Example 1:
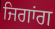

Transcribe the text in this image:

ਜਿਗਾਂਗ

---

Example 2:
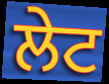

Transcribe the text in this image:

ਲੇਟ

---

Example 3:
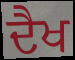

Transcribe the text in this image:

ਦੈਖ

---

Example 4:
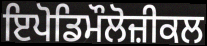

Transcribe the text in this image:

ਇਪੋਡਿਮੌਲੋਜ਼ੀਕਲ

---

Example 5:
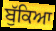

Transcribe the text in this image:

ਬੁੱਕਿਆ